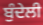
ਬੁੰਦੇਲੀ